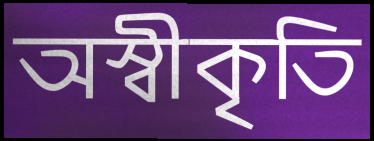
অস্বীকৃতি